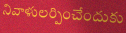
నివాళులర్పించేందుకు